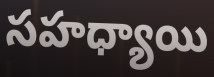
సహధ్యాయి